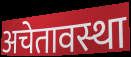
अचेतावस्था